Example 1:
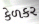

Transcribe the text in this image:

કેળકર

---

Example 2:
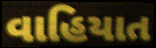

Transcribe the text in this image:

વાહિયાત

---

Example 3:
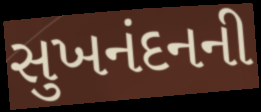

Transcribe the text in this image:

સુખનંદનની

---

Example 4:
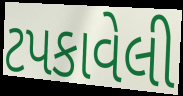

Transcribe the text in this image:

ટપકાવેલી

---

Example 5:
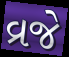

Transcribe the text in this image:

વ્રજે